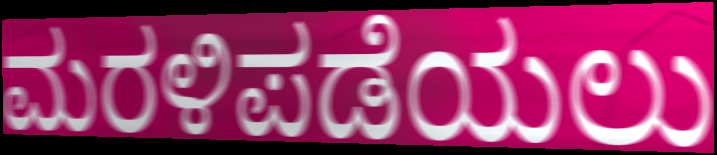
ಮರಳಿಪಡೆಯಲು